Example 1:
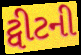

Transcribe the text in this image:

ટ્વીટની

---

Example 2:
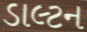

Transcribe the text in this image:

ડાલ્ટન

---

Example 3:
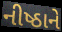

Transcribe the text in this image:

નીષ્ઠાને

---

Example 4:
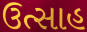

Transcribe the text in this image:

ઉત્સાહ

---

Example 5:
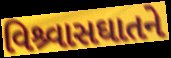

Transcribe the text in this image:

વિશ્ર્વાસઘાતને